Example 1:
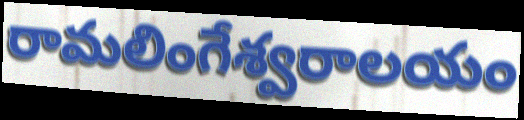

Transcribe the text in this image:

రామలింగేశ్వరాలయం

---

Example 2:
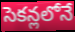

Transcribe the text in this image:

సెకన్లలోనే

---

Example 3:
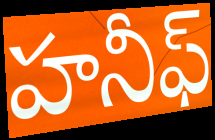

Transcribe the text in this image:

హనీఫ్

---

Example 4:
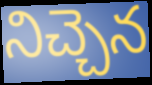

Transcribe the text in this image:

నిచ్చెన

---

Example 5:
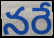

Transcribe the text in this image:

నరే